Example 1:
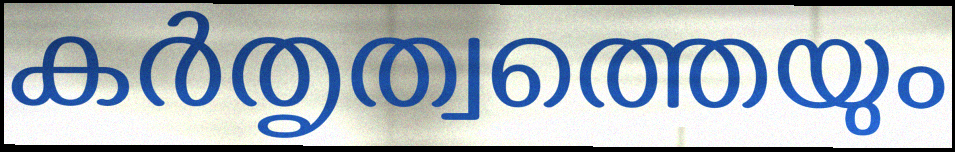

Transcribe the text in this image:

കർതൃത്വത്തെയും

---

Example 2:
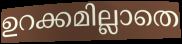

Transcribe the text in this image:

ഉറക്കമില്ലാതെ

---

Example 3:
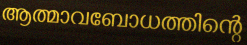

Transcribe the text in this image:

ആത്മാവബോധത്തിന്റെ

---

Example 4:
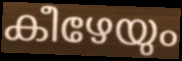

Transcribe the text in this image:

കീഴേയും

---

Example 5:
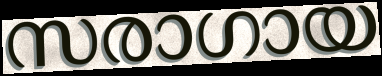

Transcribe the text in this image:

സരാഗായ